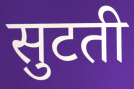
सुटती